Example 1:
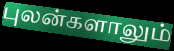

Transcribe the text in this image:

புலன்களாலும்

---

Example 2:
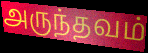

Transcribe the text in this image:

அருந்தவம்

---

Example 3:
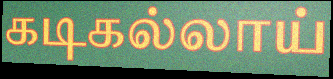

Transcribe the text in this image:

கடிகல்லாய்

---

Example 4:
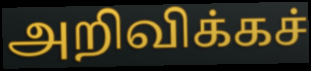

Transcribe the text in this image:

அறிவிக்கச்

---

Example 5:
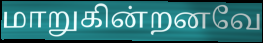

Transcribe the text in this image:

மாறுகின்றனவே